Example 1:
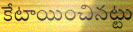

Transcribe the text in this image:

కేటాయించినట్టు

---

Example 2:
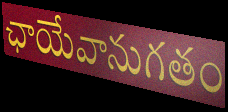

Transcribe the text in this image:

ఛాయేవానుగతం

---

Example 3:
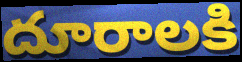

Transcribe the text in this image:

దూరాలకి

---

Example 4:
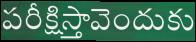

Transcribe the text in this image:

పరీక్షిస్తావెందుకు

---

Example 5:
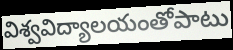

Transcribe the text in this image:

విశ్వవిద్యాలయంతోపాటు